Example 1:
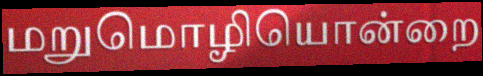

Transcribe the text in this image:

மறுமொழியொன்றை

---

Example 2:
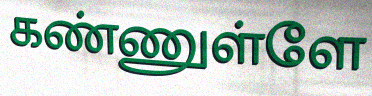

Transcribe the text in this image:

கண்ணுள்ளே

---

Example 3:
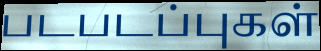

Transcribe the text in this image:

படபடப்புகள்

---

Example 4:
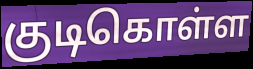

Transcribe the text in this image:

குடிகொள்ள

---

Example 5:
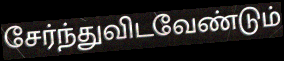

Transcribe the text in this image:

சேர்ந்துவிடவேண்டும்